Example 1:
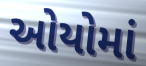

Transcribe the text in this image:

ઓયોમાં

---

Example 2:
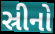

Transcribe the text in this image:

સ્રીનો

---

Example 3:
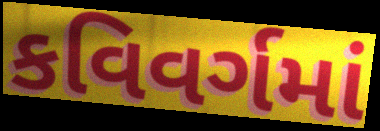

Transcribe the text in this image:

કવિવર્ગમાં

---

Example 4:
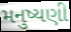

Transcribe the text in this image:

મનુષ્યણી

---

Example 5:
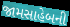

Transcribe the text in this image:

જામસાહેબની